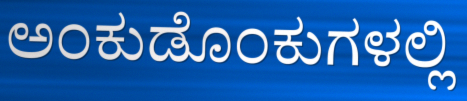
ಅಂಕುಡೊಂಕುಗಳಲ್ಲಿ